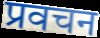
प्रवचन